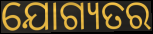
ଯୋଗ୍ୟତର